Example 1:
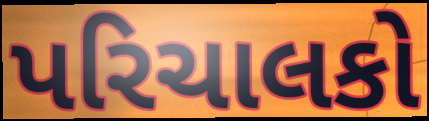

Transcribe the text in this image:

પરિચાલકો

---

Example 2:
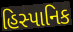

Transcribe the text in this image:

હિસ્પાનિક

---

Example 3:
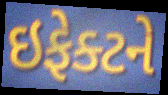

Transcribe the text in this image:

ઇફેક્ટને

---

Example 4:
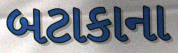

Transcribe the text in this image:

બટાકાના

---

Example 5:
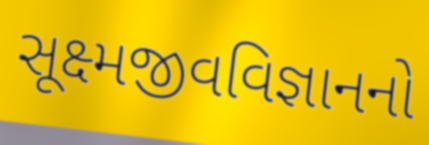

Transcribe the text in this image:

સૂક્ષ્મજીવવિજ્ઞાનનો